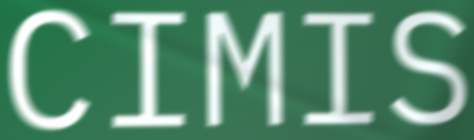
CIMIS